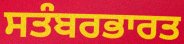
ਸਤੰਬਰਭਾਰਤ